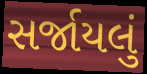
સર્જાયલું